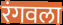
रंगवला